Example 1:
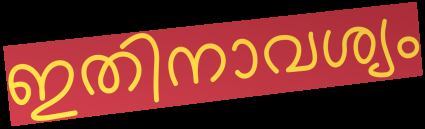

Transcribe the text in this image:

ഇതിനാവശ്യം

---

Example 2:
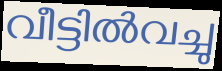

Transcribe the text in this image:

വീട്ടിൽവച്ചു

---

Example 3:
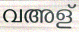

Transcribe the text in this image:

വഅള്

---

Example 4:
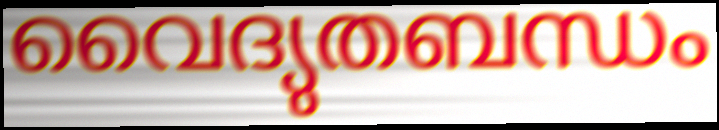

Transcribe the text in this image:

വൈദ്യുതബന്ധം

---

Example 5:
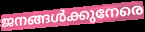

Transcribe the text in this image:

ജനങ്ങൾക്കുനേരെ